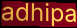
adhipa